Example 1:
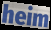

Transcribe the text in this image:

heim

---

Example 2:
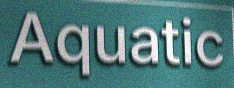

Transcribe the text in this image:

Aquatic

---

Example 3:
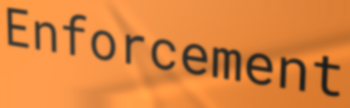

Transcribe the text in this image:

Enforcement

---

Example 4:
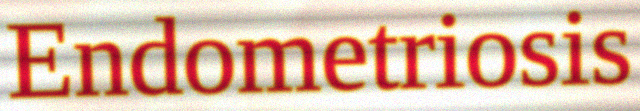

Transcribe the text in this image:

Endometriosis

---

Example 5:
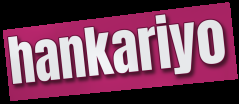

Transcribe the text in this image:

hankariyo